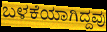
ಬಳಕೆಯಾಗಿದ್ದವು